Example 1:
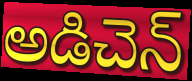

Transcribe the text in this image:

అడిచెన్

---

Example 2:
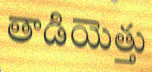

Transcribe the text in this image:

తాడియెత్తు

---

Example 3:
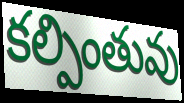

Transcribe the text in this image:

కల్పింతువు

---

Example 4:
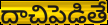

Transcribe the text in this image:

దాచిపెడితే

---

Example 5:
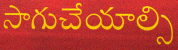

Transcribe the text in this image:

సాగుచేయాల్సి